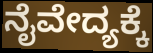
ನೈವೇದ್ಯಕ್ಕೆ